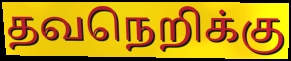
தவநெறிக்கு